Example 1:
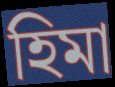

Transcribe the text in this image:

হিমা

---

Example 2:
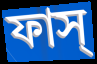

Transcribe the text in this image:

ফাস্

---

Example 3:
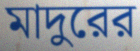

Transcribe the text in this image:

মাদুরের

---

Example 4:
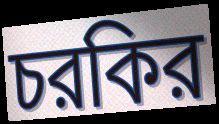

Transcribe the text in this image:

চরকির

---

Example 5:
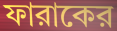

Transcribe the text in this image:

ফারাকের